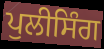
ਪੁਲੀਸਿੰਗ